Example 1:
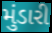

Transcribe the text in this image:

મુંડારી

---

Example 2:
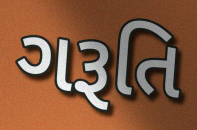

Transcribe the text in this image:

ગરૂતિ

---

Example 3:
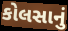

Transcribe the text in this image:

કોલસાનું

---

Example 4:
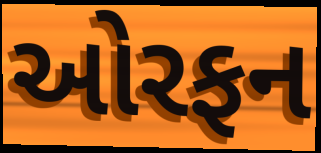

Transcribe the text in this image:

ઓરફન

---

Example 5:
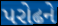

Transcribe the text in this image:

પરોઢને